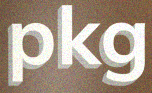
pkg